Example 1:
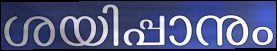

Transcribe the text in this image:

ശയിപ്പാനും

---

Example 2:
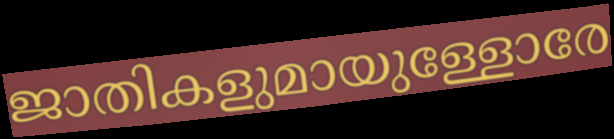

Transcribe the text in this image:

ജാതികളുമായുള്ളോരേ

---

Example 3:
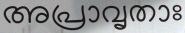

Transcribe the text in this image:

അപ്രാവൃതാഃ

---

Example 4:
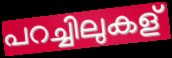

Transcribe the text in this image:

പറച്ചിലുകള്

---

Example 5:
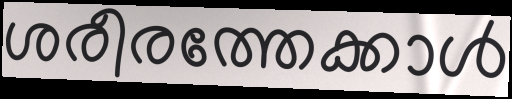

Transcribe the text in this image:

ശരീരത്തേക്കാൾ